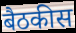
बैठकीस